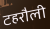
टहरौली